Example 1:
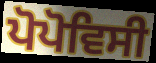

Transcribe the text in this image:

ਪੋਪੋਵਿਸੀ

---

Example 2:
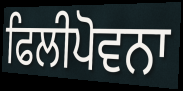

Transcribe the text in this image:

ਫਿਲੀਪੋਵਨਾ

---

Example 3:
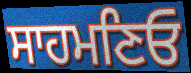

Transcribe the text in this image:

ਸਾਹਮਣਿਓ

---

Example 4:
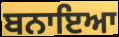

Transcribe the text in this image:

ਬਨਾਇਆ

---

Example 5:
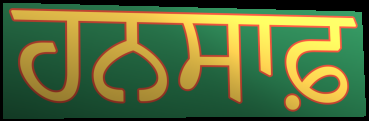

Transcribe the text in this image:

ਹਨਸਾਫ਼